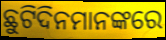
ଛୁଟିଦିନମାନଙ୍କରେ